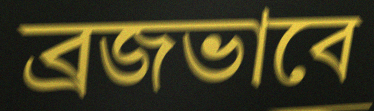
ব্রজভাবে